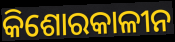
କିଶୋରକାଳୀନ